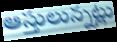
ఆస్తులున్నట్లు